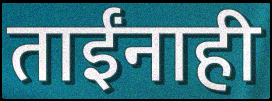
ताईंनाही